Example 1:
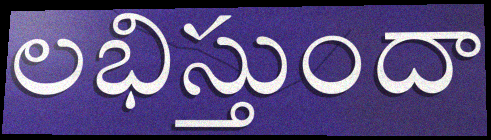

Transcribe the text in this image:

లభిస్తుందా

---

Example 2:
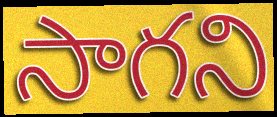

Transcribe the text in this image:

సాగని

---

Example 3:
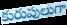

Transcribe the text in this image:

కురుపులుగా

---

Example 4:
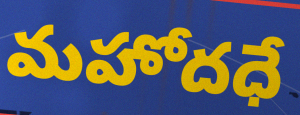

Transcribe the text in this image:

మహోదధే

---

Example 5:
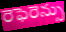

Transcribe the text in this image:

రెఫెరెన్సు